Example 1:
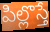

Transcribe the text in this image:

పిల్లొస్తే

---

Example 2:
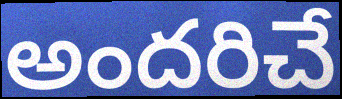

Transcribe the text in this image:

అందరిచే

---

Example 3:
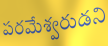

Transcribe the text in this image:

పరమేశ్వరుడని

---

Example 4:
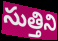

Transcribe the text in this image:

సుత్తిని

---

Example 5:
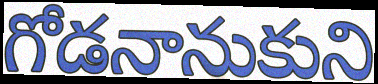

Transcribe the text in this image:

గోడనానుకుని